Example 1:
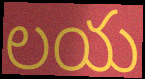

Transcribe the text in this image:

లయ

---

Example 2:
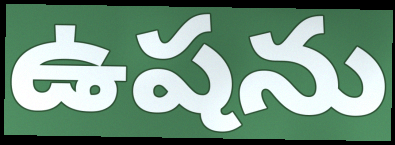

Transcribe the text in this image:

ఉషను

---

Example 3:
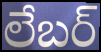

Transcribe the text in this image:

లేబర్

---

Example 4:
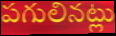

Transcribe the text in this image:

పగులినట్లు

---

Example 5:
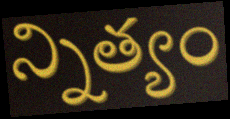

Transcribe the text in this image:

న్నిత్యం